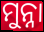
ମୁନ୍ନା